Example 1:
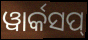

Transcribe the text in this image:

ୱାର୍କସପ୍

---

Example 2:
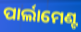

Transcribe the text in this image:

ପାର୍ଲାମେଣ୍ଟ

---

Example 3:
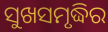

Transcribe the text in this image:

ସୁଖସମୃଦ୍ଧିର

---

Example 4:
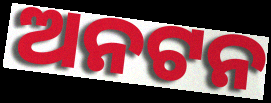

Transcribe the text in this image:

ଅନଟନ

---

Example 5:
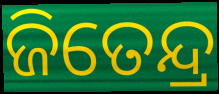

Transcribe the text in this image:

ଜିତେନ୍ଦ୍ର